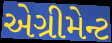
એગ્રીમેન્ટ